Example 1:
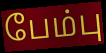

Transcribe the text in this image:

பேம்பு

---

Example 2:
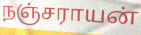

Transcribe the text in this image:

நஞ்சராயன்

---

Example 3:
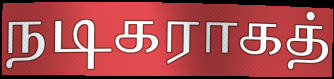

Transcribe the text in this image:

நடிகராகத்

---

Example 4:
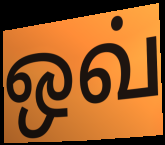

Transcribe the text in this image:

ஒவ்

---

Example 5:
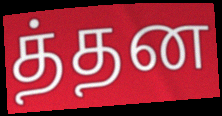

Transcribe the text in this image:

த்தன